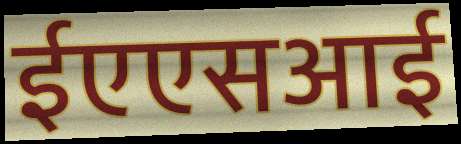
ईएएसआई